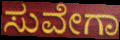
ಸುವೇಗಾ